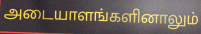
அடையாளங்களினாலும்